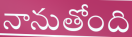
నానుతోంది